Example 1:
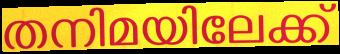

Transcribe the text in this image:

തനിമയിലേക്ക്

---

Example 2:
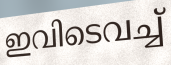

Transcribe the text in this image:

ഇവിടെവച്ച്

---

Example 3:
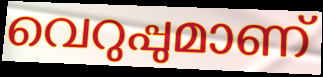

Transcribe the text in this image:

വെറുപ്പുമാണ്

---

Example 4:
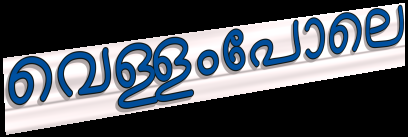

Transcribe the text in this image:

വെള്ളംപോലെ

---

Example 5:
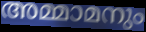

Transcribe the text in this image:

അമ്മാമനും